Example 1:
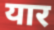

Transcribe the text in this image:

यार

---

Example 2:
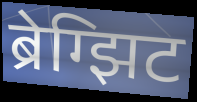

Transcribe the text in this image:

ब्रेग्झिट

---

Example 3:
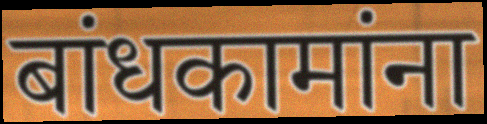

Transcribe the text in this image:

बांधकामांना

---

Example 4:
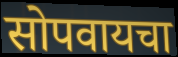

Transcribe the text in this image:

सोपवायचा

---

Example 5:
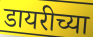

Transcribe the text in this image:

डायरीच्या